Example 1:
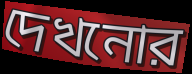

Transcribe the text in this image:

দেখনোর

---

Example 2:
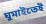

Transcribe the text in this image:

ঘুমাইতেই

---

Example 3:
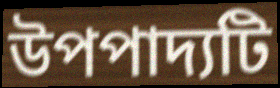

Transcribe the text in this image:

উপপাদ্যটি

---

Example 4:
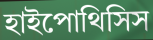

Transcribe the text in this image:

হাইপোথিসিস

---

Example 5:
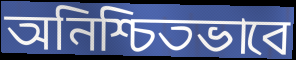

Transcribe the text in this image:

অনিশ্চিতভাবে